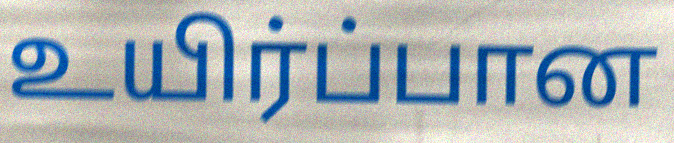
உயிர்ப்பான